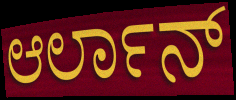
ಆರ್ಲಾನ್